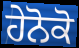
ਹੇਨੋਕੋ